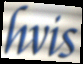
hvis